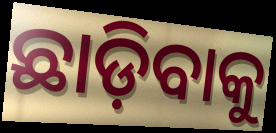
ଛାଡ଼ିବାକୁ